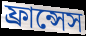
ফ্রান্সেস